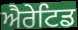
ਐਰੇਟਿਡ